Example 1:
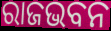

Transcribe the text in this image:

ରାଜଭବନ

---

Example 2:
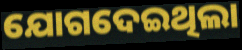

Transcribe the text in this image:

ଯୋଗଦେଇଥିଲା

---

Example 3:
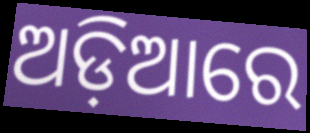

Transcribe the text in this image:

ଅଡ଼ିଆରେ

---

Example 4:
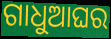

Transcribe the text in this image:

ଗାଧୁଆଘର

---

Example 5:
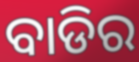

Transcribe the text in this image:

ବାଡିର